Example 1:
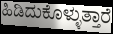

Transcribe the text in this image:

ಹಿಡಿದುಕೊಳ್ಳುತ್ತಾರೆ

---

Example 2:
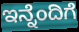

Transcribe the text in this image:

ಇನ್ನೆಂದಿಗೆ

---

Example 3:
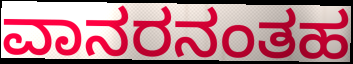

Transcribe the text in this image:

ವಾನರನಂತಹ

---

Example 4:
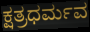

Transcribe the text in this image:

ಕ್ಷತ್ರಧರ್ಮವ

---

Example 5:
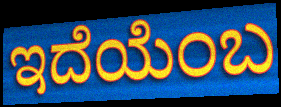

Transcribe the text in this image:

ಇದೆಯೆಂಬ